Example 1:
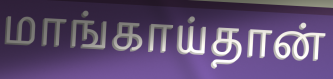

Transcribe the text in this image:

மாங்காய்தான்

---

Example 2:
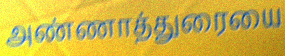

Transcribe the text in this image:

அண்ணாத்துரையை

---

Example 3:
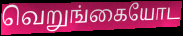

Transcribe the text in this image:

வெறுங்கையோட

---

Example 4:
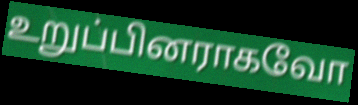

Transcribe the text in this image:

உறுப்பினராகவோ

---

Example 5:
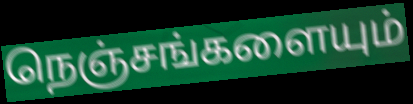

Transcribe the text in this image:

நெஞ்சங்களையும்